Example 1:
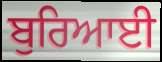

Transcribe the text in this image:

ਬੁਰਿਆਈ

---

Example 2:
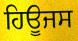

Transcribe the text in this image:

ਹਿਊਜਸ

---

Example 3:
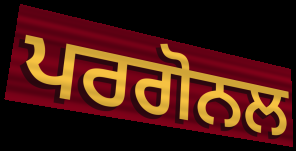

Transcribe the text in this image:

ਪਰਗੋਨਲ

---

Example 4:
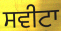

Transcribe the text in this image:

ਸਵੀਟਾ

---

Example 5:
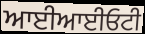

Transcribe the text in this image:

ਆਈਆਈਓਟੀ